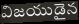
విజయుడైన